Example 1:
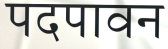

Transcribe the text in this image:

पदपावन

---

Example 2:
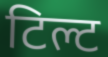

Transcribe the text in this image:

टिल्ट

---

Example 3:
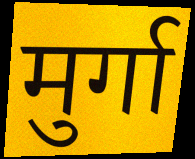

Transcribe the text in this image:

मुर्गा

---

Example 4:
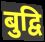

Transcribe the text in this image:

बुद्वि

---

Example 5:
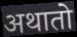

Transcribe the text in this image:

अथातो